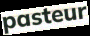
pasteur